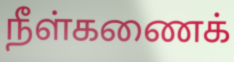
நீள்கணைக்